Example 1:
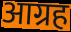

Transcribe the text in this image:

आग्रह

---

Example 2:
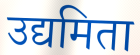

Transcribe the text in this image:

उद्यमिता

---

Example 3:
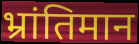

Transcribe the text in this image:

भ्रांतिमान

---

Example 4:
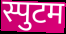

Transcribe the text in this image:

स्पुटम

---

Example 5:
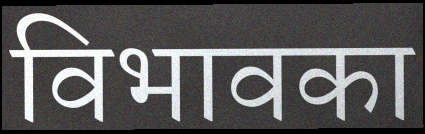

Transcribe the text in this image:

विभावका